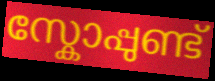
സ്കോപ്പുണ്ട്